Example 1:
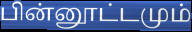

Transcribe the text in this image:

பின்னூட்டமும்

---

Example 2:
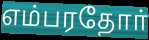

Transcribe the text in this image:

எம்பரதோர்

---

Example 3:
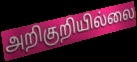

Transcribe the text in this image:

அறிகுறியில்லை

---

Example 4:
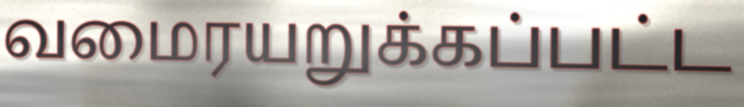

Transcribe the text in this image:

வமைரயறுக்கப்பட்ட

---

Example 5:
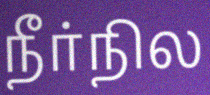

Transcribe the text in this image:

நீர்நில